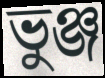
ভুঞ্জ